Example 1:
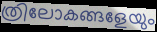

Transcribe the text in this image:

ത്രിലോകങ്ങളേയും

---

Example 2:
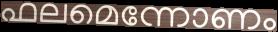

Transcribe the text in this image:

ഫലമെന്നോണം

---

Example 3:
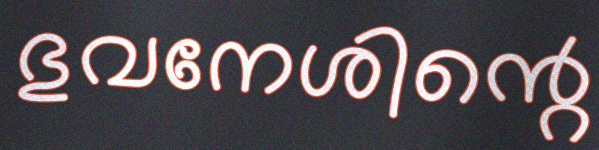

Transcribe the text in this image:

ഭുവനേശിന്റെ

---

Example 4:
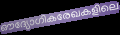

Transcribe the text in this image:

ഔദ്യോഗികരേഖകളിലെ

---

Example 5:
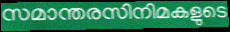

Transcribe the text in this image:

സമാന്തരസിനിമകളുടെ